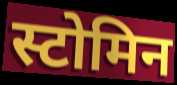
स्टोमिन